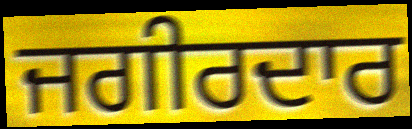
ਜਗੀਰਦਾਰ